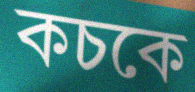
কচকে